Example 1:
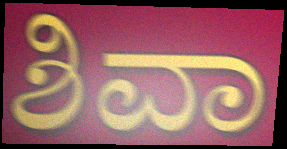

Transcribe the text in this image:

ಶಿವಾ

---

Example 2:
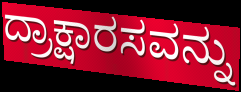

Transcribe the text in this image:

ದ್ರಾಕ್ಷಾರಸವನ್ನು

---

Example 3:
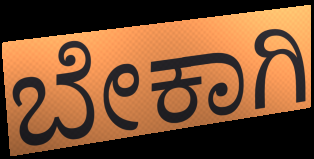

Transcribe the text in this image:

ಬೇಕಾಗಿ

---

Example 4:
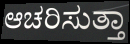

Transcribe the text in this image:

ಆಚರಿಸುತ್ತಾ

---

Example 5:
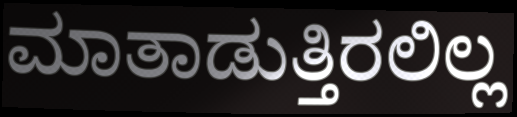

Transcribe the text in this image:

ಮಾತಾಡುತ್ತಿರಲಿಲ್ಲ